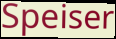
Speiser